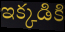
ఇక్కడికి